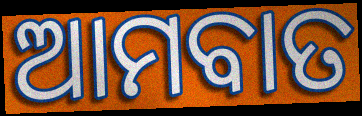
ଆମବାତ